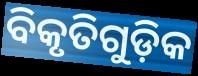
ବିକୃତିଗୁଡ଼ିକ